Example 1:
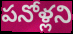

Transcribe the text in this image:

పనోళ్లని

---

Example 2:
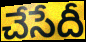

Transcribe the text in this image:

చేసేదీ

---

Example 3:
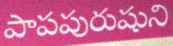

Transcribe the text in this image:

పాపపురుషుని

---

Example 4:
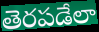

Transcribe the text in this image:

తెరపడేలా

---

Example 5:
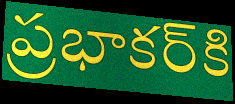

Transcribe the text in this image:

ప్రభాకర్‌కి